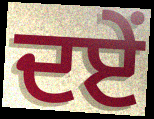
ਦਏਂ